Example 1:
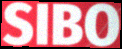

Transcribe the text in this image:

SIBO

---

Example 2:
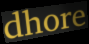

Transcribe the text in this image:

dhore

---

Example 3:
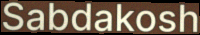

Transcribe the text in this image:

Sabdakosh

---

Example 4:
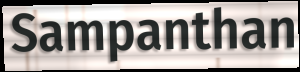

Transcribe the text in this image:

Sampanthan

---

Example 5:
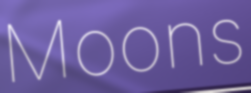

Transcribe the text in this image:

Moons